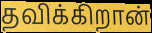
தவிக்கிறான்